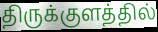
திருக்குளத்தில்